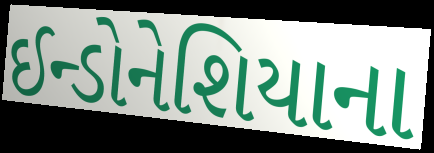
ઈન્ડોનેશિયાના